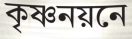
কৃষ্ণনয়নে